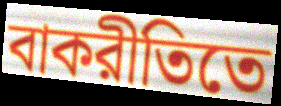
বাকরীতিতে